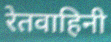
रेतवाहिनी